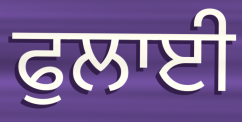
ਫੁਲਾਈ